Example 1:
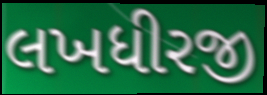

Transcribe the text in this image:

લખધીરજી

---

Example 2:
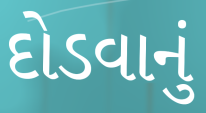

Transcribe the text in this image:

દોડવાનું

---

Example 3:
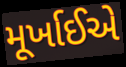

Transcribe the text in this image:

મૂર્ખાઈએ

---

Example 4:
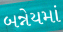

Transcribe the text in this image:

બન્નેયમાં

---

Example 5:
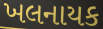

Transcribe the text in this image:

ખલનાયક